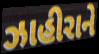
ઝાહીરાને